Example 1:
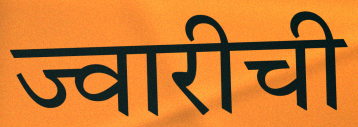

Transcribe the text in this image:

ज्वारीची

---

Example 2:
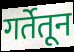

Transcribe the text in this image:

गर्तेतून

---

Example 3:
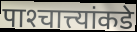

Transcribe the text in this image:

पाश्चात्त्यांकडे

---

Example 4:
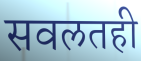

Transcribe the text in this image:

सवलतही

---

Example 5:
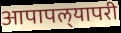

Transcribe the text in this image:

आपापल्यापरी